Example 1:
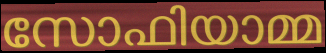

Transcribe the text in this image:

സോഫിയാമ്മ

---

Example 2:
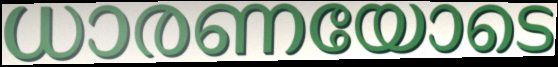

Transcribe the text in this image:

ധാരണയോടെ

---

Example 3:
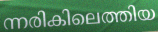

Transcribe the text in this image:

ന്നരികിലെത്തിയ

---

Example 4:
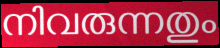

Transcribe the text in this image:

നിവരുന്നതും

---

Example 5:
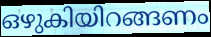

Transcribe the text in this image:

ഒഴുകിയിറങ്ങണം